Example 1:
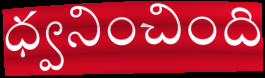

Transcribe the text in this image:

ధ్వనించింది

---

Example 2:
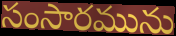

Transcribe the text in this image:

సంసారమును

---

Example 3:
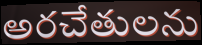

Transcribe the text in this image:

అరచేతులను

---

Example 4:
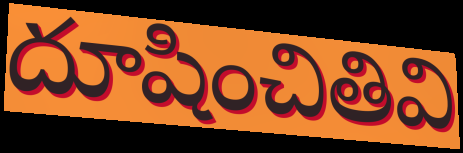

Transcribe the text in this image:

దూషించితివి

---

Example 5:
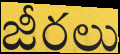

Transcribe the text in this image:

జీరలు